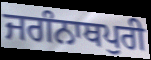
ਜਗੰਨਾਥਪੁਰੀ